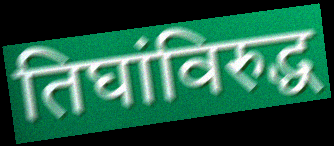
तिघांविरुद्ध